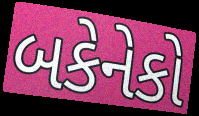
બકેનેકો